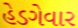
હેડગેવાર